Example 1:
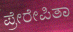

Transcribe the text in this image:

ಪ್ರೇರೇಪಿತಾ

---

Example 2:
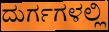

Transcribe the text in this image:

ದುರ್ಗಗಳಲ್ಲಿ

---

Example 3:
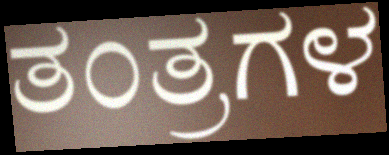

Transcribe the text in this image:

ತಂತ್ರಗಳ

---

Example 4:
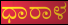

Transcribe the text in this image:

ಧಾರಾಳ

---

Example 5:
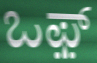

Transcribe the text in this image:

ಒಫ಼್